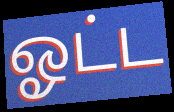
ஓட்ட